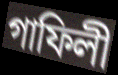
গাফিলী